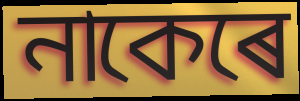
নাকেৰে